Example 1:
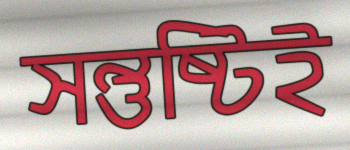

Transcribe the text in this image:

সন্তুষ্টিই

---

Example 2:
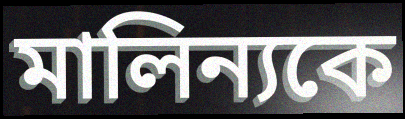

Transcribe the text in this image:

মালিন্যকে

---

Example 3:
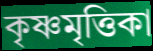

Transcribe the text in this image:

কৃষ্ণমৃত্তিকা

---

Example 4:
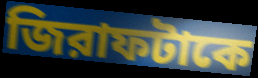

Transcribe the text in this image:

জিরাফটাকে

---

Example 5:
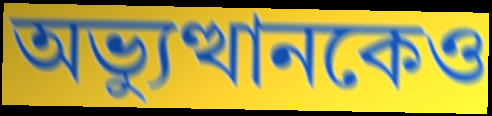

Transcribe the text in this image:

অভ্যুত্থানকেও